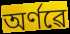
অৰ্ণৱে